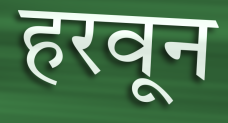
हरवून